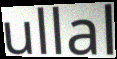
ullal